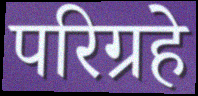
परिग्रहे